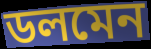
ডলমেন